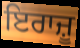
ਇਰਾਜ਼ੂ